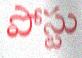
పోస్టు